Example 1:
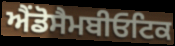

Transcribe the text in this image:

ਐਂਡੋਸੈਮਬੀਓਟਿਕ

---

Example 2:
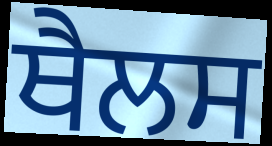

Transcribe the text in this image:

ਥੈਲਸ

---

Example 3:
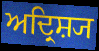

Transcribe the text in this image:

ਅਦ੍ਰਿਸ਼੍ਯ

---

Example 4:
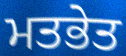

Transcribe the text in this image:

ਮਤਭੇਤ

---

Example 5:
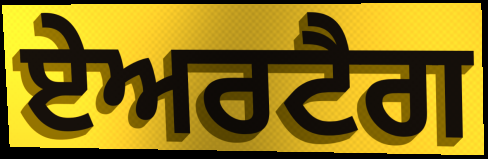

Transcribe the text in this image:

ਏਅਰਟੈਗ